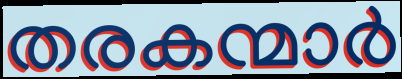
തരകന്മാർ